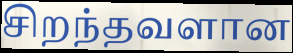
சிறந்தவளான